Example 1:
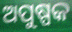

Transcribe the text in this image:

ଅପୁଷ୍ପକ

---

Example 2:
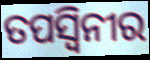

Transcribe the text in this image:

ତପସ୍ୱିନୀର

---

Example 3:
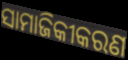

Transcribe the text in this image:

ସାମାଜିକୀକରଣ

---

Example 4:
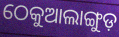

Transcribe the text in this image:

ଠେକୁଆଲାଙ୍ଗୁଡ଼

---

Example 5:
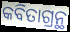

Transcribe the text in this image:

କବିତାଗ୍ରନ୍ଥ